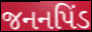
જનનપિંડ